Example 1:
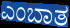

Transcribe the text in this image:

ಎಂಬಾತ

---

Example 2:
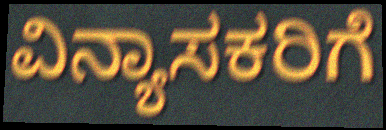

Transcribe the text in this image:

ವಿನ್ಯಾಸಕರಿಗೆ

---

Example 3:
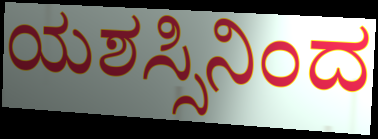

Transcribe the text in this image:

ಯಶಸ್ಸಿನಿಂದ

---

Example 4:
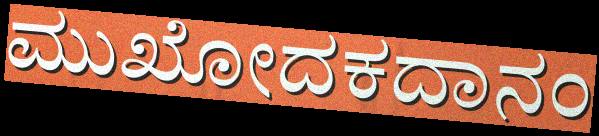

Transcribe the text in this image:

ಮುಖೋದಕದಾನಂ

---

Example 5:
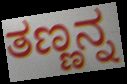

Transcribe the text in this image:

ತಣ್ಣನ್ನ